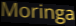
Moringa